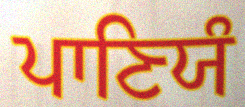
ਪਾਣਿਯੰ